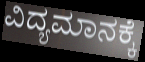
ವಿದ್ಯಮಾನಕ್ಕೆ